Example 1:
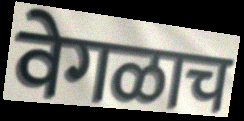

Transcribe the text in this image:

वेगळाच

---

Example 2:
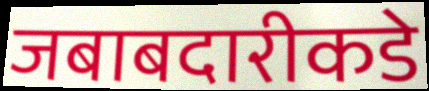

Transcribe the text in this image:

जबाबदारीकडे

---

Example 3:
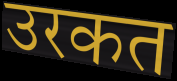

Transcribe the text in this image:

उरकत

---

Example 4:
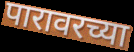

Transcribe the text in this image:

पारावरच्या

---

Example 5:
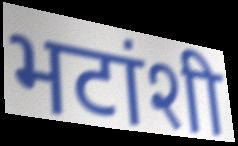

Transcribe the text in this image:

भटांशी